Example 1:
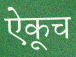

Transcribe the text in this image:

ऐकूच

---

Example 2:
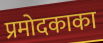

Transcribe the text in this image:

प्रमोदकाका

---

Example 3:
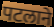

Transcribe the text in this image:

पटलाने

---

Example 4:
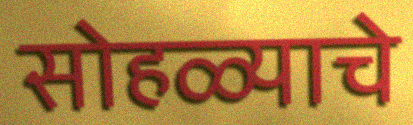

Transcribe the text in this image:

सोहळ्याचे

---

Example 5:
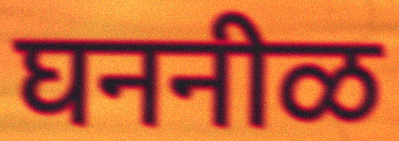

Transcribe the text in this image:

घननीळ